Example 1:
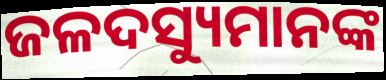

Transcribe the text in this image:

ଜଳଦସ୍ୟୁମାନଙ୍କ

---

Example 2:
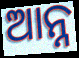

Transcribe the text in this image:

ଆନ୍ନ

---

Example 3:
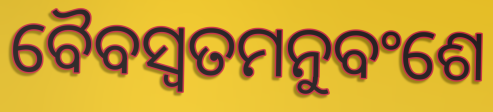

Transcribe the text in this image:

ବୈବସ୍ଵତମନୁବଂଶେ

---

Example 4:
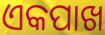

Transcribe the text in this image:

ଏକପାଖ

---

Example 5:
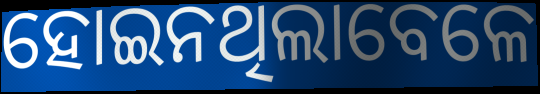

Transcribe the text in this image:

ହୋଇନଥିଲାବେଳେ